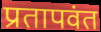
प्रतापवंत